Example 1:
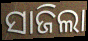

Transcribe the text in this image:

ସାଜିଲା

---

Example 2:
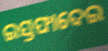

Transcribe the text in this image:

ଇସ୍ତଫାଦେଇ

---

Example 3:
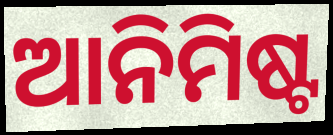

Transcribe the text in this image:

ଆନିମିଷ୍ଟ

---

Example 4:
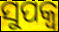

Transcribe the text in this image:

ସୁପକ୍ବ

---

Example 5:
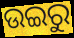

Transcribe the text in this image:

ଉଇରୁ